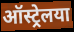
ऑस्ट्रेलया